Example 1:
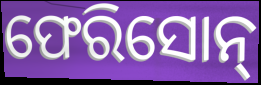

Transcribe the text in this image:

ଫେରିସୋନ୍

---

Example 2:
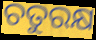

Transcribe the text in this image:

ଚତୁରକ୍ଷ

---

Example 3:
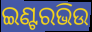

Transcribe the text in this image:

ଇଣ୍ଟରଭିଉ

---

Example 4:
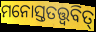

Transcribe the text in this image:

ମନୋସ୍ତତତ୍ତ୍ୱବିତ୍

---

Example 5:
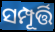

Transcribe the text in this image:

ସମ୍ପୂର୍ତ୍ତି